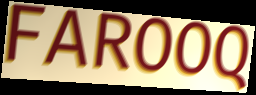
FAROOQ